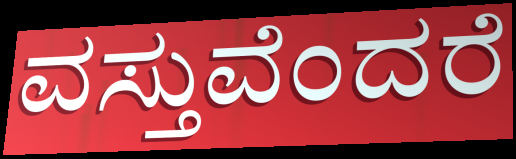
ವಸ್ತುವೆಂದರೆ